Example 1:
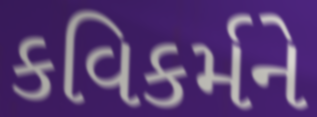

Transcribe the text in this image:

કવિકર્મને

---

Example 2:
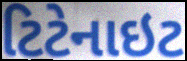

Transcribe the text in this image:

ટિટેનાઇટ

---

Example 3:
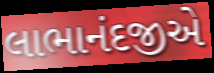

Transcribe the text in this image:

લાભાનંદજીએ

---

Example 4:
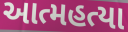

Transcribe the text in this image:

આત્મહત્યા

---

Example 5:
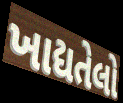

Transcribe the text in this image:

ખાદ્યતેલો